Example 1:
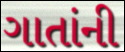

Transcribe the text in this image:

ગાતાંની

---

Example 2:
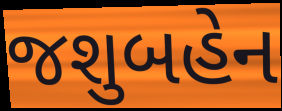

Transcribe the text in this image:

જશુબહેન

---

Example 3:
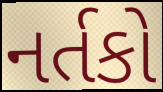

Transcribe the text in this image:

નર્તકો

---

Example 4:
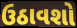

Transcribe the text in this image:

ઉઠાવશો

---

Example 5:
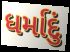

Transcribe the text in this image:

ધર્માદું